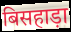
बिसहाड़ा